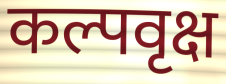
कल्‍पवृक्ष